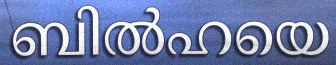
ബിൽഹയെ